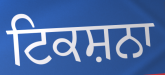
ਟਿਕਸ਼ਨਾ